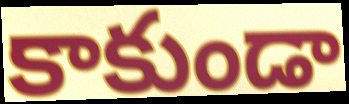
కాకుండా